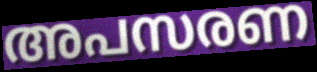
അപസരണ